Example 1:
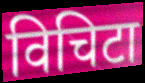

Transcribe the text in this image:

विचिटा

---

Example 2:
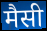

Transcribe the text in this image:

मैसी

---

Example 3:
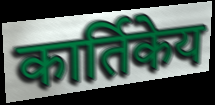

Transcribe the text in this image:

कार्तिकेय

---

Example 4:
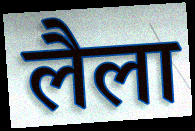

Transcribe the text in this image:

लैला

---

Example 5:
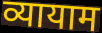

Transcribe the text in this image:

व्यायाम